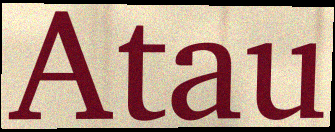
Atau